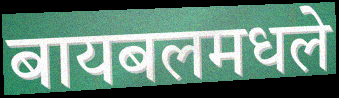
बायबलमधले